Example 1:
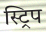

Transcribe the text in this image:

स्ट्रिप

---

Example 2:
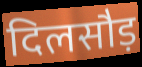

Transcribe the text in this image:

दिलसौड़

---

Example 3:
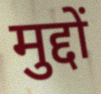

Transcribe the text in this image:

मुद्दों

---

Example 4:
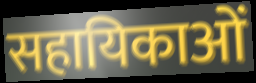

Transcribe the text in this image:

सहायिकाओं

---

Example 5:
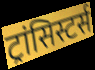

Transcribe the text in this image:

ट्रांसिस्टर्स